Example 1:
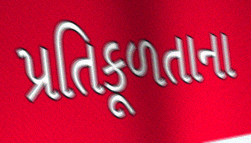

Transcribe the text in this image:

પ્રતિકૂળતાના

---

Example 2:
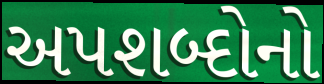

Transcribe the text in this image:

અપશબ્દોનો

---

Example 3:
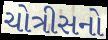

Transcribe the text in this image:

ચોત્રીસનો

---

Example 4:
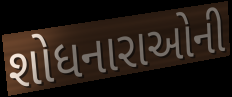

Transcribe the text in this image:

શોધનારાઓની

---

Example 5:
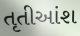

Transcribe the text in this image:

તૃતીઆંશ